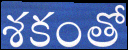
శకంతో